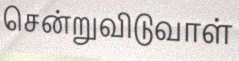
சென்றுவிடுவாள்